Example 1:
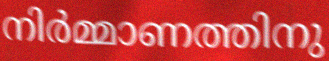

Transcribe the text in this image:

നിർമ്മാണത്തിനു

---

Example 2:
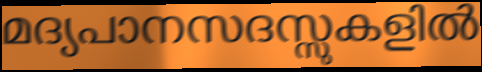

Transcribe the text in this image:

മദ്യപാനസദസ്സുകളിൽ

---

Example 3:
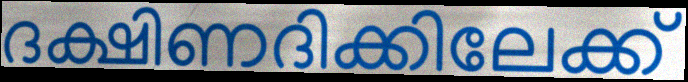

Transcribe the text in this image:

ദക്ഷിണദിക്കിലേക്ക്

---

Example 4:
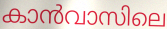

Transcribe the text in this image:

കാൻവാസിലെ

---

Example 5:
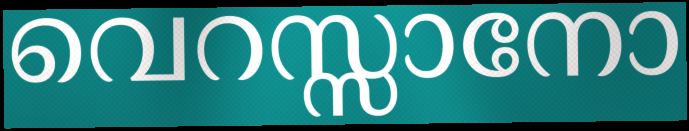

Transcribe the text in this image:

വെറസ്സാനോ